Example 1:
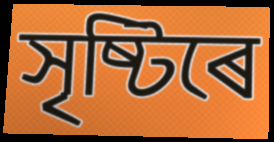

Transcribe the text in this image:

সৃষ্টিৰে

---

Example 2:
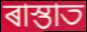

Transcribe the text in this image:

ৰাস্তাত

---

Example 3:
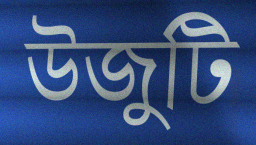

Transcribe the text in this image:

উজুটি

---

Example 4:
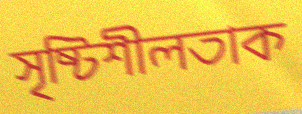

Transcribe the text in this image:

সৃষ্টিশীলতাক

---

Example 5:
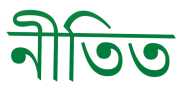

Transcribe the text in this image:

নীতিত